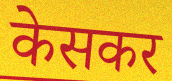
केसकर